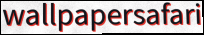
wallpapersafari